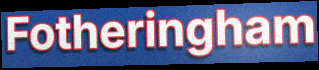
Fotheringham